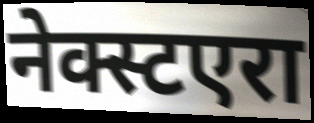
नेक्स्टएरा